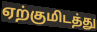
ஏற்குமிடத்து